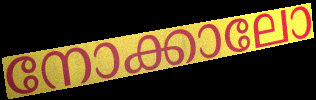
നോക്കാലോ